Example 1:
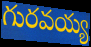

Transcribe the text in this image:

గురవయ్య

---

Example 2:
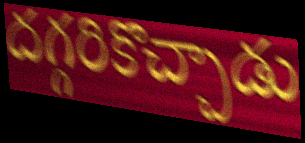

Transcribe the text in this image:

దగ్గరికొచ్చాడు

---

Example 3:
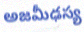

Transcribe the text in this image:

అజమీఢస్య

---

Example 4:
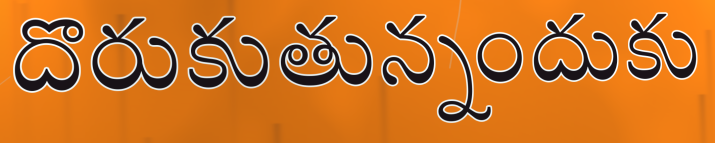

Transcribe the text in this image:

దొరుకుతున్నందుకు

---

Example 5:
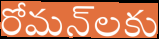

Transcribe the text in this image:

రోమన్‌లకు